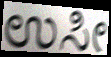
ಉಸೀ